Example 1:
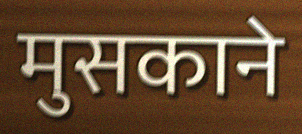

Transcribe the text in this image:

मुसकाने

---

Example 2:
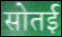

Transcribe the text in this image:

सोतई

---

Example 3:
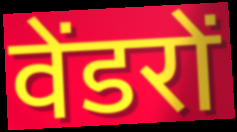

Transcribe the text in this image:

वेंडरों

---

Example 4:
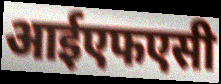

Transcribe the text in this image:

आईएफएसी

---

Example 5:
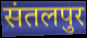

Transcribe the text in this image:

संतलपुर